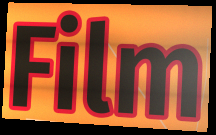
Film